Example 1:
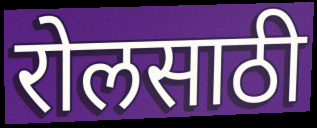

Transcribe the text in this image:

रोलसाठी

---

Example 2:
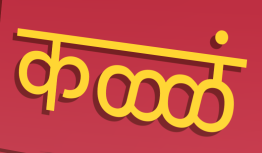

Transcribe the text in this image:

कळ्ळं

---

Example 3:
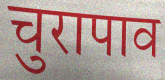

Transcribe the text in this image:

चुरापाव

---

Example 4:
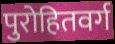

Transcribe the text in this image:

पुरोहितवर्ग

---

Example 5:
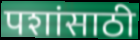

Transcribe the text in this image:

पशांसाठी